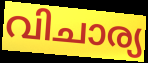
വിചാര്യ